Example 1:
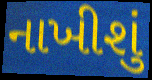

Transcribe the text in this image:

નાખીશું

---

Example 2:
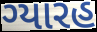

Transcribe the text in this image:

ગ્યારહ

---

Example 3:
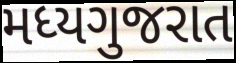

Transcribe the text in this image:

મધ્યગુજરાત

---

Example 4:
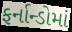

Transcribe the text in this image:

ફર્નાન્ડોમાં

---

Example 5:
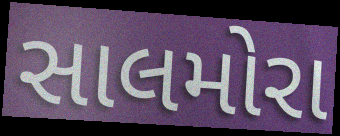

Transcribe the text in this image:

સાલમોરા